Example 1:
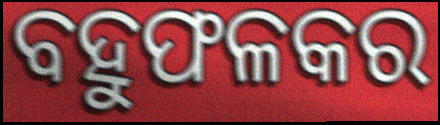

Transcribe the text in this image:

ବହୁଫଳକର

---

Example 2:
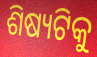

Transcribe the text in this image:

ଶିଷ୍ୟଟିକୁ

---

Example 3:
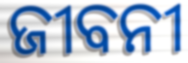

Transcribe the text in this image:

ଜୀବନୀ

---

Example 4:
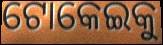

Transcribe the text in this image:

ଟୋକେଇକୁ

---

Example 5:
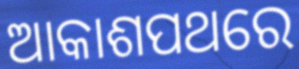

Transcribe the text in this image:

ଆକାଶପଥରେ